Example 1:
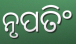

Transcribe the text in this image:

ନୃପତିଂ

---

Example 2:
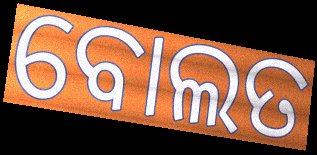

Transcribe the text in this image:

ବୋଲତ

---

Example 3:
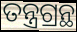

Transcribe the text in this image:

ତନ୍ତ୍ରଗ୍ରନ୍ଥ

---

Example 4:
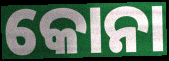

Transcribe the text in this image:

କୋନା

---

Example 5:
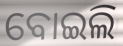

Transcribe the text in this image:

ବୋଇଲି